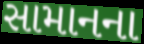
સામાનના